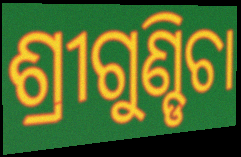
ଶ୍ରୀଗୁଣ୍ଡିଚା